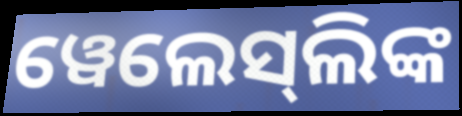
ୱେଲେସ୍‌ଲିଙ୍କ